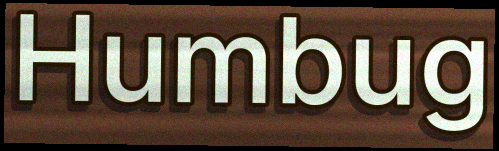
Humbug